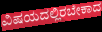
ವಿಷಯದಲ್ಲಿರಬೇಕಾದ